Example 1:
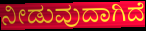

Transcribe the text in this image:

ನೀಡುವುದಾಗಿದೆ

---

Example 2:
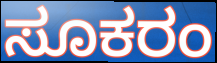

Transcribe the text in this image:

ಸೂಕರಂ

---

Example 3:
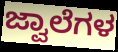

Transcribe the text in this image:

ಜ್ವಾಲೆಗಳ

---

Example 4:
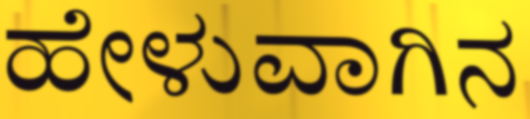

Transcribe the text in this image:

ಹೇಳುವಾಗಿನ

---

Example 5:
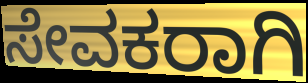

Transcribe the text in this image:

ಸೇವಕರಾಗಿ